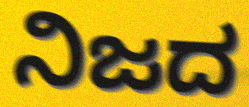
ನಿಜದ